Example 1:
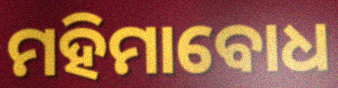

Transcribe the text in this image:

ମହିମାବୋଧ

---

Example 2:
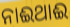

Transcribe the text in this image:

ନାଈଥାଈ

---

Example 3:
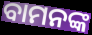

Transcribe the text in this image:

ବାମନଙ୍କ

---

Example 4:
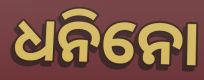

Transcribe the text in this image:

ଧନିନୋ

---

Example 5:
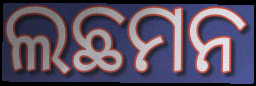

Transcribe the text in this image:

ଲଛମନ